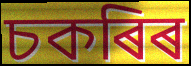
চকৰিৰ